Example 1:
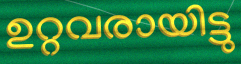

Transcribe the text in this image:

ഉറ്റവരായിട്ടു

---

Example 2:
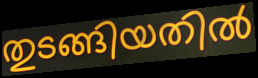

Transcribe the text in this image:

തുടങ്ങിയതിൽ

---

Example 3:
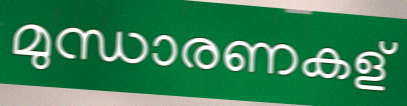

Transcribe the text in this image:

മുന്ധാരണകള്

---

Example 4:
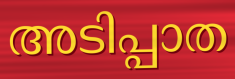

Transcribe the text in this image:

അടിപ്പാത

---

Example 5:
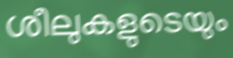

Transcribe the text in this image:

ശീലുകളുടെയും